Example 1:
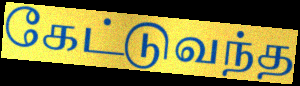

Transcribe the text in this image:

கேட்டுவந்த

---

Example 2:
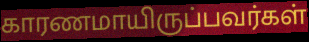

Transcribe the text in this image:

காரணமாயிருப்பவர்கள்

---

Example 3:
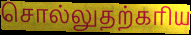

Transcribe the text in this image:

சொல்லுதற்கரிய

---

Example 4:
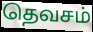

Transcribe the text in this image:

தெவசம்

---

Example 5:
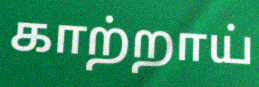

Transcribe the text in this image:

காற்றாய்